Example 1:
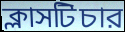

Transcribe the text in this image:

ক্লাসটিচার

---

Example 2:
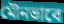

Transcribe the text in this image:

মৌনভাবে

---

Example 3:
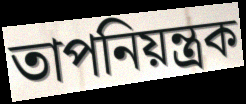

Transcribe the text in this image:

তাপনিয়ন্ত্রক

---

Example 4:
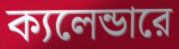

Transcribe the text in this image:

ক্যলেন্ডারে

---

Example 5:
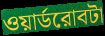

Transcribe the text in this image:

ওয়ার্ডরোবটা